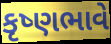
કૃષ્ણભાવે